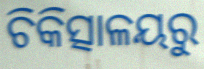
ଚିକିତ୍ସାଳୟରୁ